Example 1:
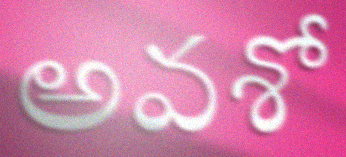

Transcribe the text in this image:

అవశో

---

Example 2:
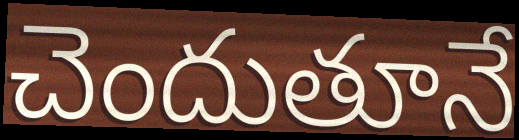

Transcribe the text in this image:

చెందుతూనే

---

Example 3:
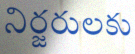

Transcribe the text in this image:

నిర్జరులకు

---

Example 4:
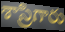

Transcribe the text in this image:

శాస్రిగారు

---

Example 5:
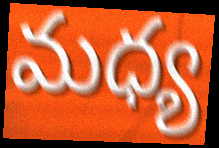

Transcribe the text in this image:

మధ్య